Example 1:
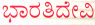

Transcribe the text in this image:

ಭಾರತಿದೇವಿ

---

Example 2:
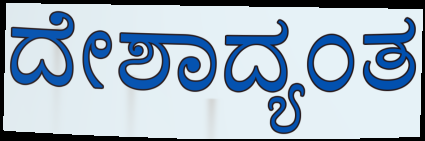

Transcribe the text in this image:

ದೇಶಾದ್ಯಂತ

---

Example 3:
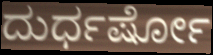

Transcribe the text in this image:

ದುರ್ಧರ್ಷೋ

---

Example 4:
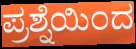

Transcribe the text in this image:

ಪ್ರಶ್ನೆಯಿಂದ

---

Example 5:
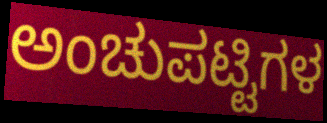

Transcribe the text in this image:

ಅಂಚುಪಟ್ಟಿಗಳ